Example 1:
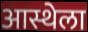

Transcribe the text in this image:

आस्थेला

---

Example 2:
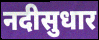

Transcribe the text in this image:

नदीसुधार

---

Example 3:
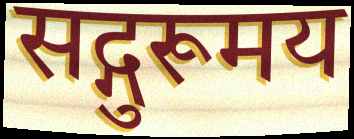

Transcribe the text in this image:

सद्गुरूमय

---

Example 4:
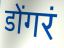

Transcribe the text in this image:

डोंगरं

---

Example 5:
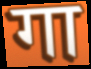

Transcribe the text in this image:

गा